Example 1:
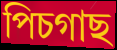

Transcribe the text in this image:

পিচগাছ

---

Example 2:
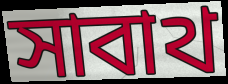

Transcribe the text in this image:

সাবাথ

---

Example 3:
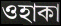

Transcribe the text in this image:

ওহাকা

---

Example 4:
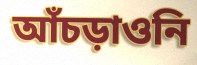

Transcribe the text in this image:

আঁচড়াওনি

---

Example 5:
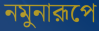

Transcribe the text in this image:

নমুনারূপে